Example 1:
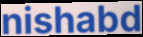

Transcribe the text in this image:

nishabd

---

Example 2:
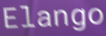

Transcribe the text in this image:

Elango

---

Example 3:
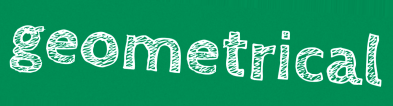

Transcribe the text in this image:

geometrical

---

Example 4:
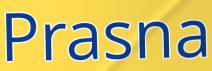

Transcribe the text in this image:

Prasna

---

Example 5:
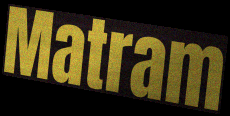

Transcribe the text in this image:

Matram